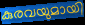
കുരവയുമായി